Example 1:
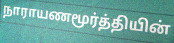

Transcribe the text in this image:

நாராயணமூர்த்தியின்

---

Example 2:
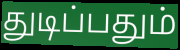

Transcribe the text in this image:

துடிப்பதும்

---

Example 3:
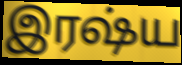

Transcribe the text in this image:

இரஷ்ய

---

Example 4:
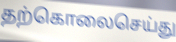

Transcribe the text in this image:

தற்கொலைசெய்து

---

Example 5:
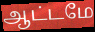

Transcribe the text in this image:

ஆட்டமே